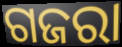
ଗଜରା